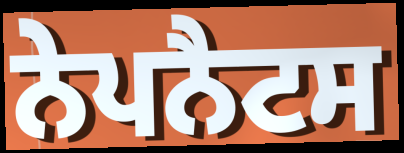
ਨੇਪਨੈਟਸ